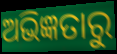
ଅଭିଜ୍ଞତାରୁ